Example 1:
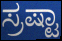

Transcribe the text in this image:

ಸ್ರಷ್ಟಾ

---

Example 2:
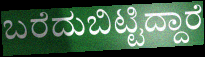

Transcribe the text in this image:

ಬರೆದುಬಿಟ್ಟಿದ್ದಾರೆ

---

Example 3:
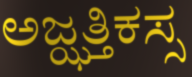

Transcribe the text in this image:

ಅಜ್ಝತ್ತಿಕಸ್ಸ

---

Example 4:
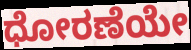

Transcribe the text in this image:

ಧೋರಣೆಯೇ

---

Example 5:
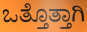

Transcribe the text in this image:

ಒತ್ತೊತ್ತಾಗಿ